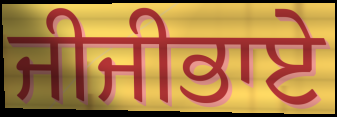
ਜੀਜੀਭਾਏ